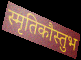
स्मृतिकौस्तुभ